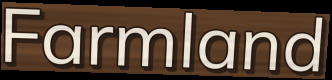
Farmland